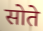
सोते